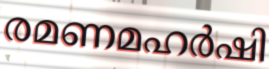
രമണമഹർഷി